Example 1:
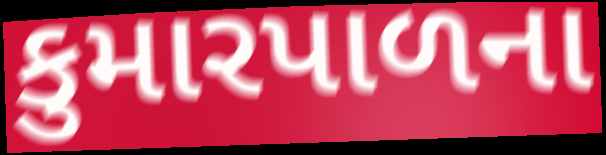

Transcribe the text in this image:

કુમારપાળના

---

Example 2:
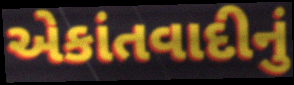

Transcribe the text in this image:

એકાંતવાદીનું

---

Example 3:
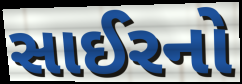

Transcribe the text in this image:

સાઈરનો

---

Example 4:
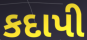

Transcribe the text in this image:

કદાપી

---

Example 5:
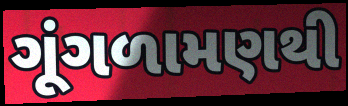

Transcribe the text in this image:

ગૂંગળામણથી